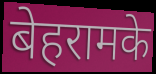
बेहरामके